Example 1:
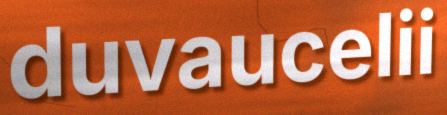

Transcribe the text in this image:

duvaucelii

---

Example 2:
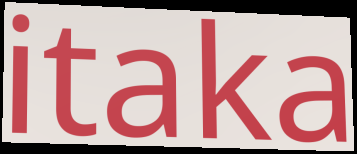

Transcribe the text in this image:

itaka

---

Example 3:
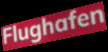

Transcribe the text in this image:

Flughafen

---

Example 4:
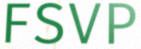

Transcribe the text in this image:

FSVP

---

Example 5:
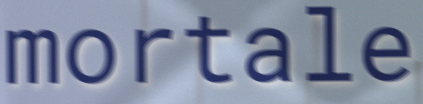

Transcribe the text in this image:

mortale